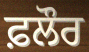
ਫ਼ਲੌਰ